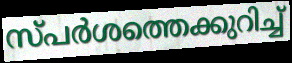
സ്പർശത്തെക്കുറിച്ച്